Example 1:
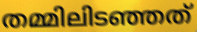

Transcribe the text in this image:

തമ്മിലിടഞ്ഞത്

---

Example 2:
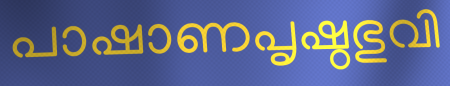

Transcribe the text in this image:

പാഷാണപൃഷ്ഠഭുവി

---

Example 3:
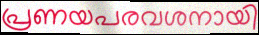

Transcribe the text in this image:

പ്രണയപരവശനായി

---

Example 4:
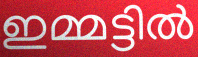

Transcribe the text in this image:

ഇമ്മട്ടിൽ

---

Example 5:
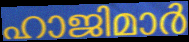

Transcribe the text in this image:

ഹാജിമാർ